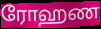
ரோஹண